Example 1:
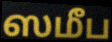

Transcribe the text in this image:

ஸமீப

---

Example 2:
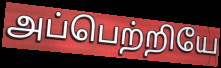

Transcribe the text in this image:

அப்பெற்றியே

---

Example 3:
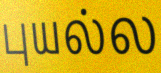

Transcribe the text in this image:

புயல்ல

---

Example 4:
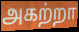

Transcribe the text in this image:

அகற்றா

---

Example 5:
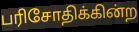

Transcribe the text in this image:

பரிசோதிக்கின்ற